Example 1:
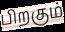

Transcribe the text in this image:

பிறகும்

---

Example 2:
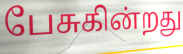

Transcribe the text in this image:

பேசுகின்றது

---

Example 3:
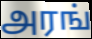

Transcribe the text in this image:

அரங்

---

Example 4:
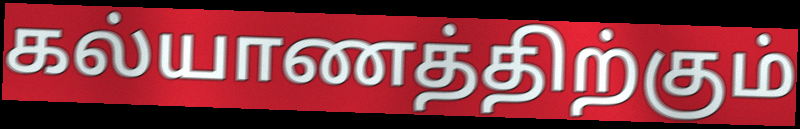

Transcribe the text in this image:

கல்யாணத்திற்கும்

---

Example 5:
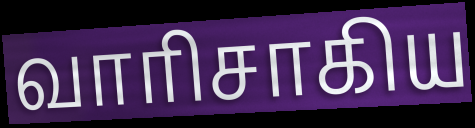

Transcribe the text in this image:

வாரிசாகிய